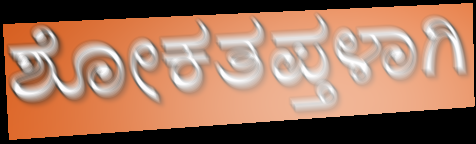
ಶೋಕತಪ್ತಳಾಗಿ